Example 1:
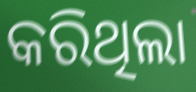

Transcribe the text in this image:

କରିଥିଲା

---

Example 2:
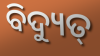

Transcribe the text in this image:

ବିଦ୍ୟୁତ୍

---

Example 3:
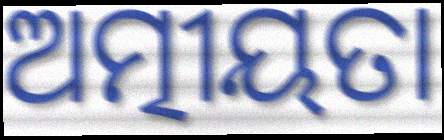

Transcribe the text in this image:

ଅତ୍ମୀୟତା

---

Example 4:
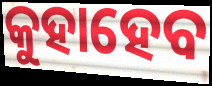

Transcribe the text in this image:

କୁହାହେବ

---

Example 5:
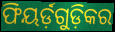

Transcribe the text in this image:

ଫିୟର୍ଡ଼ଗୁଡ଼ିକର